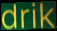
drik